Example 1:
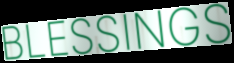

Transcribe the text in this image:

BLESSINGS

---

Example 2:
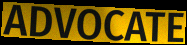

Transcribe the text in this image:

ADVOCATE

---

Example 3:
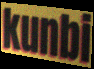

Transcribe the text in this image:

kunbi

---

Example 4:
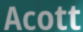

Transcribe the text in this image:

Acott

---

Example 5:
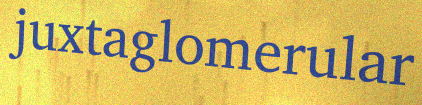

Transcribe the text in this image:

juxtaglomerular